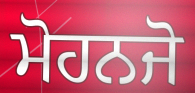
ਮੋਹਨਜੋ